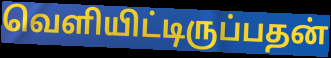
வெளியிட்டிருப்பதன்